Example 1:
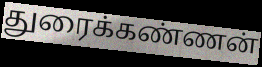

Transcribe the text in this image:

துரைக்கண்ணன்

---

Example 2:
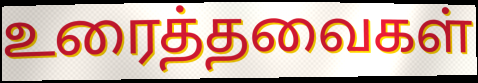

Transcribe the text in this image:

உரைத்தவைகள்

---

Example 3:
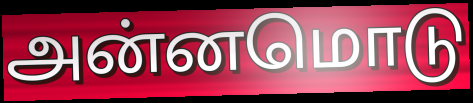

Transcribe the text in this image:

அன்னமொடு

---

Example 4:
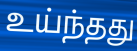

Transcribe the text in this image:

உய்ந்தது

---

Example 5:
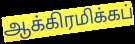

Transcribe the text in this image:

ஆக்கிரமிக்கப்